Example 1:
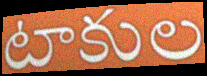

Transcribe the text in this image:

టాకుల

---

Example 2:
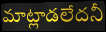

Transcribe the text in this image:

మాట్లాడలేదనీ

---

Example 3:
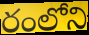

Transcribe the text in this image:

రంలోని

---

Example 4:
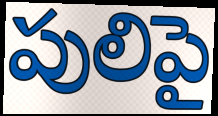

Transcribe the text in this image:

పులిపై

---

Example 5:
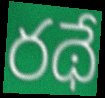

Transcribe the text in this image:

రథే